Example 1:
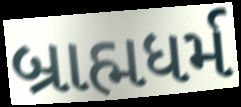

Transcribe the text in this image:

બ્રાહ્મધર્મ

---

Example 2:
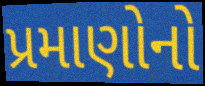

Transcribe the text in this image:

પ્રમાણોનો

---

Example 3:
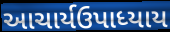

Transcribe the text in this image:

આચાર્યઉપાધ્યાય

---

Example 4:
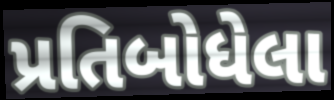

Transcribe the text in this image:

પ્રતિબોધેલા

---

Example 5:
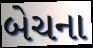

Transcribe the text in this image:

બેચના